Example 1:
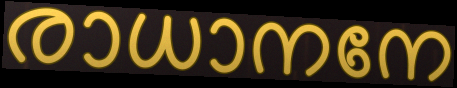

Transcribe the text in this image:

രാധാനനേ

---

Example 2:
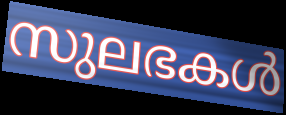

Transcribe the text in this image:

സുലഭകൾ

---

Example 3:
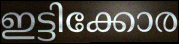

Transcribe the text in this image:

ഇട്ടിക്കോര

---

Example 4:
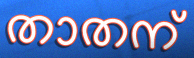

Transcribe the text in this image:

താതന്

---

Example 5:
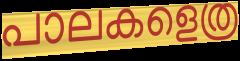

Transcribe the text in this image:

പാലകളെത്ര